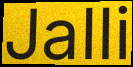
Jalli